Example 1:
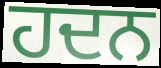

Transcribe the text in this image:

ਹਦਨ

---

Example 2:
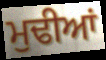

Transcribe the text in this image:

ਮੁਢੀਆਂ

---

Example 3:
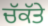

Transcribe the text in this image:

ਚੱਕੱਤੇ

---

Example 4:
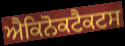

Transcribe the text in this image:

ਐਕਿਨੋਕਟੈਕਟਸ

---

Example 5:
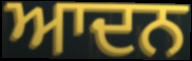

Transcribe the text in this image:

ਆਦਨ